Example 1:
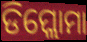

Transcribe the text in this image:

ଡିପ୍ଲୋମା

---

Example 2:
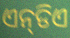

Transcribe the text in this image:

ଏନ୍‌ଡିଏ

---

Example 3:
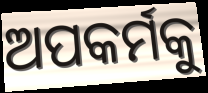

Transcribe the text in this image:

ଅପକର୍ମକୁ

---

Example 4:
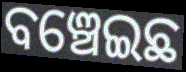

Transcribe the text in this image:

ବଞ୍ଚେଇଛ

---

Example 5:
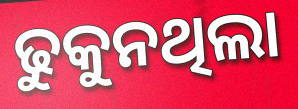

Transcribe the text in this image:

ଢୁକୁନଥିଲା